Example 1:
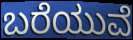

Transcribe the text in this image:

ಬರೆಯುವೆ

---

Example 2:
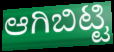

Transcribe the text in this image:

ಆಗಿಬಿಟ್ಟಿ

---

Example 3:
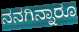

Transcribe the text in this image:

ನನಗಿನ್ನಾರೂ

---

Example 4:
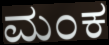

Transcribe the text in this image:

ಮಂಕ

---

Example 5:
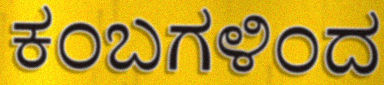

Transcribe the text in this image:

ಕಂಬಗಳಿಂದ